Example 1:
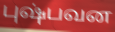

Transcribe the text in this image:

புஷ்பவன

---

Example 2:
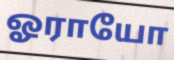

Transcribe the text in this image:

ஓராயோ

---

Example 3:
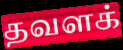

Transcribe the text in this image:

தவளக்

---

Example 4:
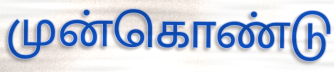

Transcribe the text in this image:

முன்கொண்டு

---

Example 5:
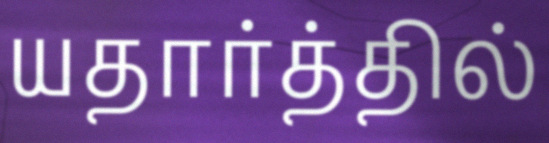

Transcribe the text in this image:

யதார்த்தில்